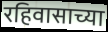
रहिवासाच्या